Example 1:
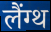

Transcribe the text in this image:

लैंग्थ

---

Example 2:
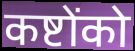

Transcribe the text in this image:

कष्टोंको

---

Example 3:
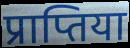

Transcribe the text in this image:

प्राप्तिया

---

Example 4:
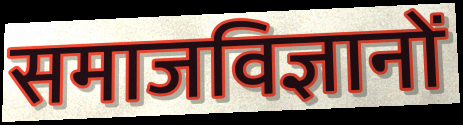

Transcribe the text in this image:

समाजविज्ञानों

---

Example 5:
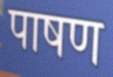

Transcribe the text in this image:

पाषण